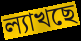
ল্যাখছে